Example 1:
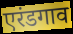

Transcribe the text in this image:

एरंडगाव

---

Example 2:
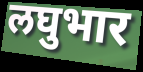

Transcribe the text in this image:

लघुभार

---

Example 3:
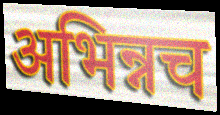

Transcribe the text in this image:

अभिन्नच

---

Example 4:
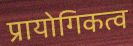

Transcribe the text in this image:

प्रायोगिकत्व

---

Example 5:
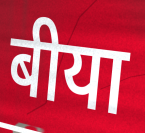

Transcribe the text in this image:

बीया